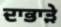
ਦਾਭਾੜੇ